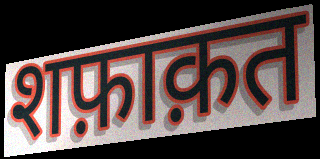
शफ़ाक़त